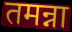
तमन्ना